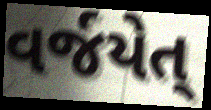
વર્જયેત્